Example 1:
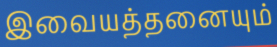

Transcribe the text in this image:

இவையத்தனையும்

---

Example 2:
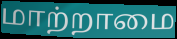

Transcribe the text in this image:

மாற்றாமை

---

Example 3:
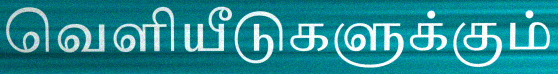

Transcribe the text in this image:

வெளியீடுகளுக்கும்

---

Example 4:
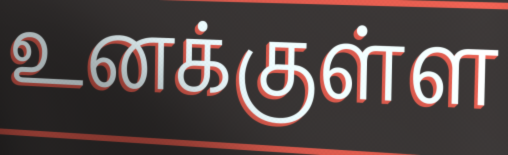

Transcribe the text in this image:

உனக்குள்ள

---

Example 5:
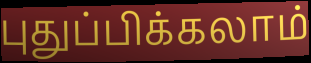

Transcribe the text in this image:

புதுப்பிக்கலாம்